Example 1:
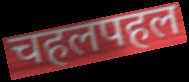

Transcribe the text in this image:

चहलपहल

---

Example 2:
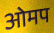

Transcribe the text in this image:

ओमप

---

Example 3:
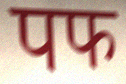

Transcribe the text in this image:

पफ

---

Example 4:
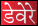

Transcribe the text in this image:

डेवेरे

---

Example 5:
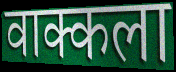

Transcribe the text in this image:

वाक्कला